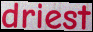
driest